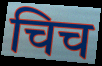
चिच